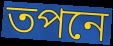
তপনে